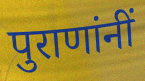
पुराणांनीं